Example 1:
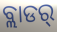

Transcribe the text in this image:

ବ୍ଲାଡର୍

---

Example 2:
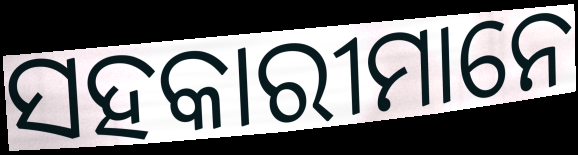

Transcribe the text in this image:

ସହକାରୀମାନେ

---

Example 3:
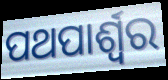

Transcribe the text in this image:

ପଥପାର୍ଶ୍ଵର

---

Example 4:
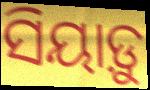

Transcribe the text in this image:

ସିୟାଡ଼ୁ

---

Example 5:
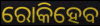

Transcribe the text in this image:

ରୋକିହେବ